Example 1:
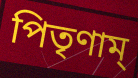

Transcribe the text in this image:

পিতৃণাম্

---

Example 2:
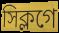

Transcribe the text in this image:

সিক্লগে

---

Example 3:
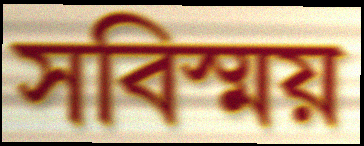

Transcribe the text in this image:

সবিস্ময়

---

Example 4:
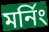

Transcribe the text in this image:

মর্নিং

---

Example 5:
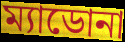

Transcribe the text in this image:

ম্যাডোনা